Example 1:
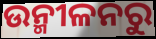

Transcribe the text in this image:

ଉନ୍ମୀଳନରୁ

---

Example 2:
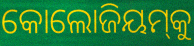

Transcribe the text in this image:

କୋଲୋଜିୟମ୍‍କୁ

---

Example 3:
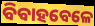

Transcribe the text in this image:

ବିବାହବେଳେ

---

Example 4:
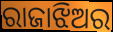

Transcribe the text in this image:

ରାଜାଝିଅର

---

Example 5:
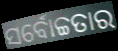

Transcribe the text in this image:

ସର୍ବୋଚ୍ଚତାର